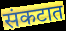
संकटात